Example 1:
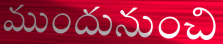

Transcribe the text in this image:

ముందునుంచి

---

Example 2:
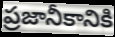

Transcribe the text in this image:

ప్రజానీకానికి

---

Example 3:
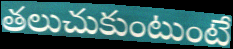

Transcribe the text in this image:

తలుచుకుంటుంటే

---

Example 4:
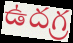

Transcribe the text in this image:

ఉదగ్ర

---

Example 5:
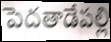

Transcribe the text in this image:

పెదతాడేపల్లి